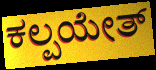
ಕಲ್ಪಯೇತ್